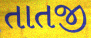
તાતજી